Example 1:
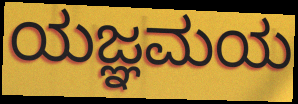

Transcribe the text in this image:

ಯಜ್ಞಮಯ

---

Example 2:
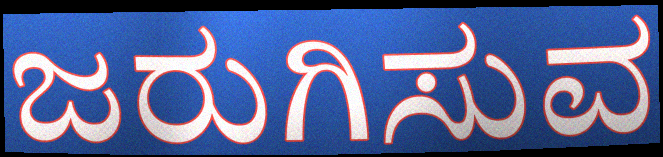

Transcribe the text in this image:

ಜರುಗಿಸುವ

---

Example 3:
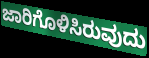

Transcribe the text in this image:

ಜಾರಿಗೊಳಿಸಿರುವುದು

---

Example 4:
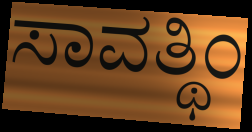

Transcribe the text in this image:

ಸಾವತ್ಥಿಂ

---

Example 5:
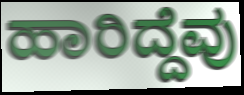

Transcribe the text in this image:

ಹಾರಿದ್ದೆವು